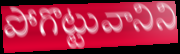
పోగొట్టువానిని